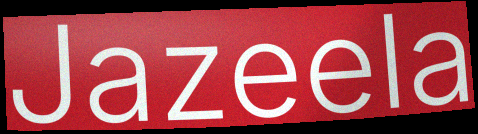
Jazeela